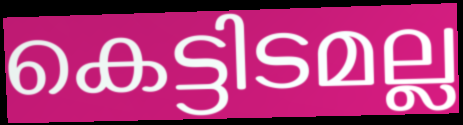
കെട്ടിടമല്ല